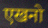
एखनो